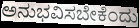
ಅನುಭವಿಸಬೇಕೆಂದು